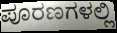
ಪೂರಣಗಳಲ್ಲಿ